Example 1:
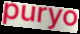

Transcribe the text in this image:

puryo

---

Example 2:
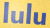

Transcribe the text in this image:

lulu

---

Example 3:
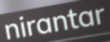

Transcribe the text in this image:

nirantar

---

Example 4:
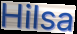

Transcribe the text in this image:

Hilsa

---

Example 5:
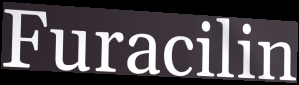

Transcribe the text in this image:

Furacilin